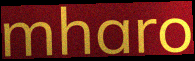
mharo